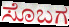
ಸೊಬಗ